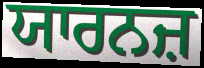
ਯਾਰਨਜ਼